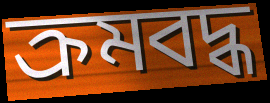
ক্ৰমবদ্ধ